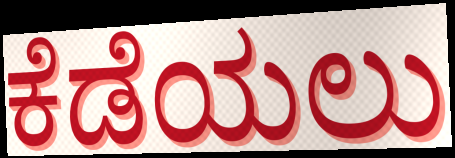
ಕೆಡೆಯಲು